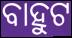
ବାହୁଟ